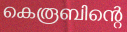
കെരൂബിന്റെ